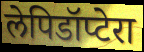
लेपिडॉप्टेरा